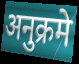
अनुक्रमे